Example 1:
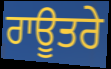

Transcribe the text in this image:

ਰਾਊਤਰੇ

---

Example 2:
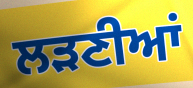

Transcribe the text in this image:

ਲੜਣੀਆਂ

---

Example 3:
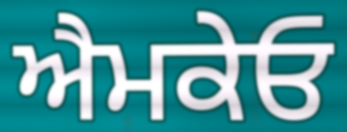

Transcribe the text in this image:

ਐਮਕੇਓ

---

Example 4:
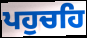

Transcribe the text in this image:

ਪਹੁਚਹਿ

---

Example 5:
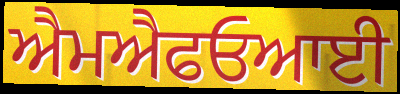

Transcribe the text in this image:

ਐਮਐਫਓਆਈ